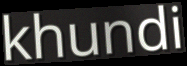
khundi